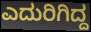
ಎದುರಿಗಿದ್ದ